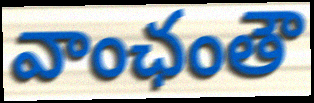
వాంఛంతౌ